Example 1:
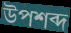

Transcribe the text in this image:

উপশব্দ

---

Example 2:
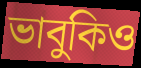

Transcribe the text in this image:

ভাবুকিও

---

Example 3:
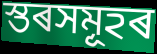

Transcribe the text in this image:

স্তৰসমূহৰ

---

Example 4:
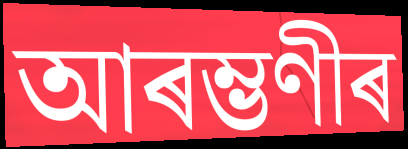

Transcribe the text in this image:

আৰম্ভণীৰ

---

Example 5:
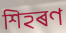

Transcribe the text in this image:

শিহৰণ